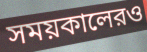
সময়কালেরও